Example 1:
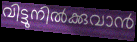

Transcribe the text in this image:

വിട്ടുനിൽക്കുവാൻ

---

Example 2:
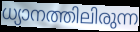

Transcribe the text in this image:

ധ്യാനത്തിലിരുന്ന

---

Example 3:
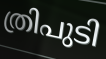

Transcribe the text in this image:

ത്രിപുടി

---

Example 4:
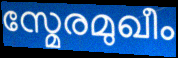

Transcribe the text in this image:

സ്മേരമുഖീം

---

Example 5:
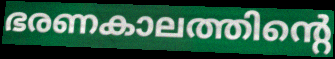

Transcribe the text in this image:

ഭരണകാലത്തിന്റെ